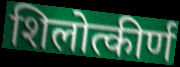
शिलोत्कीर्ण